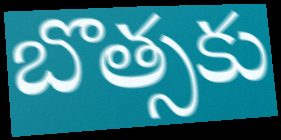
బొత్సకు